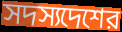
সদস্যদেশের